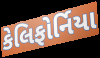
કેલિફોર્નિયા